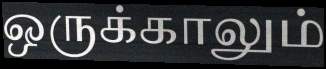
ஒருக்காலும்